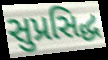
સુપ્રસિદ્ધ